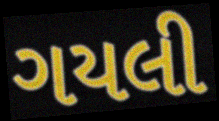
ગયલી